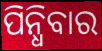
ପିନ୍ଧିବାର